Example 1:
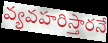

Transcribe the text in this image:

వ్యవహరిస్తారనే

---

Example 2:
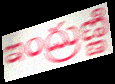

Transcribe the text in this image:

ఇంద్రుణ్ణి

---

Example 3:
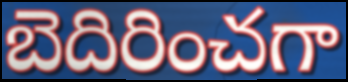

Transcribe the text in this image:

బెదిరించగా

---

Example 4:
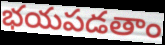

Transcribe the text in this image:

భయపడతాం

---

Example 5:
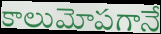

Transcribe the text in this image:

కాలుమోపగానే